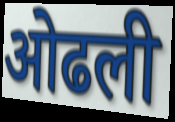
ओढली